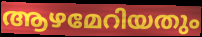
ആഴമേറിയതും